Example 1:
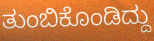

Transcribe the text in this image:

ತುಂಬಿಕೊಂಡಿದ್ದು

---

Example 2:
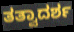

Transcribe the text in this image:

ತತ್ವಾದರ್ಶ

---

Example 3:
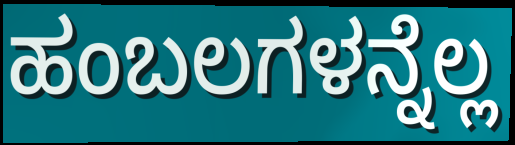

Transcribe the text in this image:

ಹಂಬಲಗಳನ್ನೆಲ್ಲ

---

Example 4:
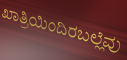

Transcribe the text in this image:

ಖಾತ್ರಿಯಿಂದಿರಬಲ್ಲೆವು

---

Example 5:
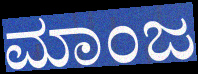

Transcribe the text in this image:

ಮಾಂಜ